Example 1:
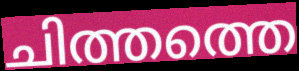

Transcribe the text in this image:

ചിത്തത്തെ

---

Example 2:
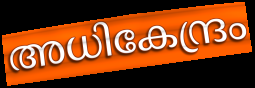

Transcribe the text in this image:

അധികേന്ദ്രം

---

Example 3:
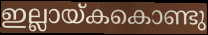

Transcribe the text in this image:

ഇല്ലായ്കകൊണ്ടു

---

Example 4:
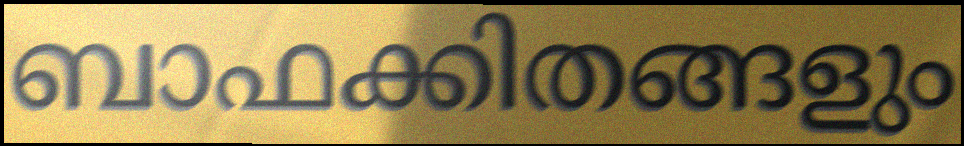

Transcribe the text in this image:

ബാഫക്കിതങ്ങളും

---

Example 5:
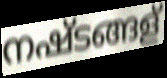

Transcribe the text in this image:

നഷ്ടങ്ങള്